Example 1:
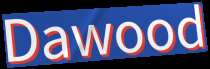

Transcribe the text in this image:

Dawood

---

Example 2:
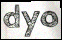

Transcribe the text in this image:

dyo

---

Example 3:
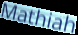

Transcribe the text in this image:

Mathiah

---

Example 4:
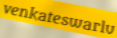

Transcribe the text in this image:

venkateswarlu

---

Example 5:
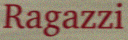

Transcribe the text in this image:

Ragazzi